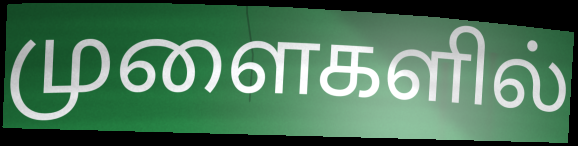
முளைகளில்